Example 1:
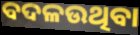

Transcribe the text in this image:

ବଦଳଉଥିବା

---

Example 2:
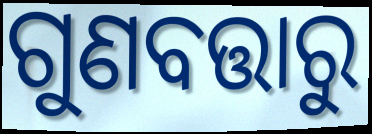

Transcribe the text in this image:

ଗୁଣବତ୍ତାରୁ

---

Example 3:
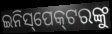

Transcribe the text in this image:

ଇନିସ୍‌ପେକ୍‌ଟରଙ୍କୁ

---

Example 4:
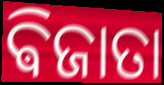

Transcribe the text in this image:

ଵିଜାତା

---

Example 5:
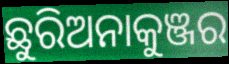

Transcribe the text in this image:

ଛୁରିଅନାକୁଞ୍ଜର